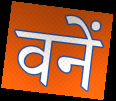
वनें